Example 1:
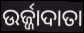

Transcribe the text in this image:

ଉର୍ଜ୍ଜାଦାତା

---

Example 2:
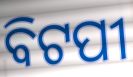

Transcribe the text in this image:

ବିଟପୀ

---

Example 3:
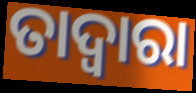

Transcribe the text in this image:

ତାଦ୍ଵାରା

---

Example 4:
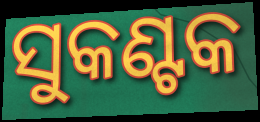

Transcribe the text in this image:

ସୁକଣ୍ଟକ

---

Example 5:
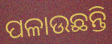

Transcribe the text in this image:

ପଳାଉଛନ୍ତି